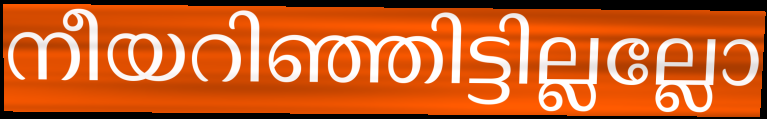
നീയറിഞ്ഞിട്ടില്ലല്ലോ